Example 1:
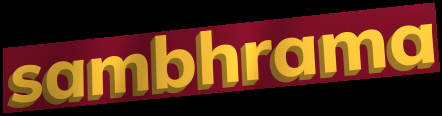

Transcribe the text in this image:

sambhrama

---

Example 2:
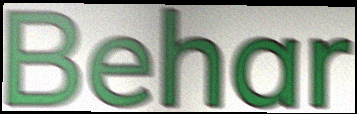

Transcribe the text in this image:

Behar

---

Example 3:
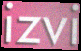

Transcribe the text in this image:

izvi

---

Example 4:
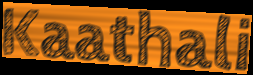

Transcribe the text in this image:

Kaathali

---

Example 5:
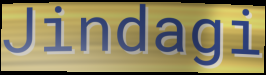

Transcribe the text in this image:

Jindagi